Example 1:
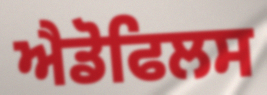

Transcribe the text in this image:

ਐਡੋਫਿਲਸ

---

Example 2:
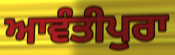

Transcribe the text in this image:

ਆਵੰਤੀਪੁਰਾ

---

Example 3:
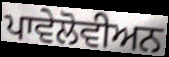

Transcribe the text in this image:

ਪਾਵੇਲੋਵੀਅਨ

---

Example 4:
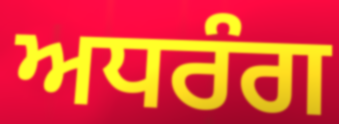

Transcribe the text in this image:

ਅਧਰੰਗ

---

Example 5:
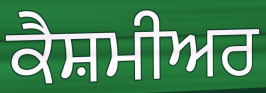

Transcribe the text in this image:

ਕੈਸ਼ਮੀਅਰ